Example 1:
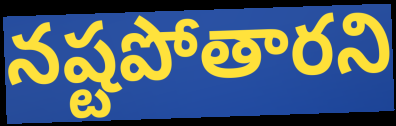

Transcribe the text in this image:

నష్టపోతారని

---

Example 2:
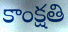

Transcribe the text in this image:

కాంక్షతి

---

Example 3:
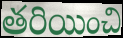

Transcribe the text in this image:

తరియించి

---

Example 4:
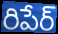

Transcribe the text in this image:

రిపేర్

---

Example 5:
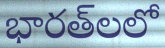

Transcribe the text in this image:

భారత్‌లలో